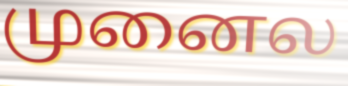
முனைல